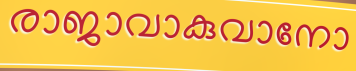
രാജാവാകുവാനോ